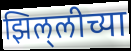
झिल्लीच्या